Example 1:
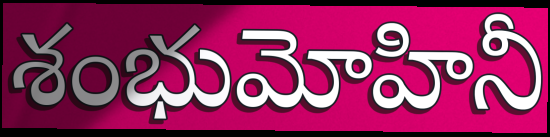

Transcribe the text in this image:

శంభుమోహినీ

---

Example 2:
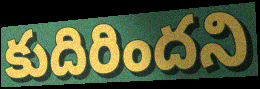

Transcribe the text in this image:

కుదిరిందని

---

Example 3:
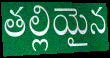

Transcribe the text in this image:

తల్లియైన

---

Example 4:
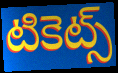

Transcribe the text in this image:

టికెట్స్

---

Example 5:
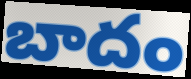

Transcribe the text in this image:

బాదం